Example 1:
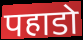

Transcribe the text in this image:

पहाडो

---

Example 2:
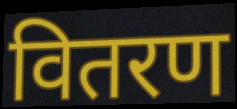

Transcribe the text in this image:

वितरण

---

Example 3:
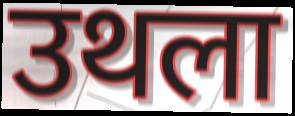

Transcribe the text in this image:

उथला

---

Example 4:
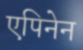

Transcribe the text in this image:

एपिनेन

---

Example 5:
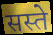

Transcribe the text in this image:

सस्ते